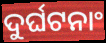
ଦୁର୍ଘଟନାଂ